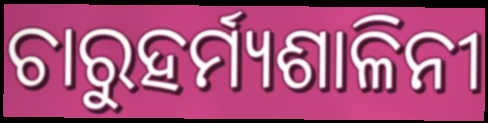
ଚାରୁହର୍ମ୍ୟଶାଳିନୀ